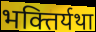
भक्तिर्यथा